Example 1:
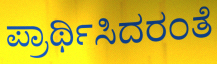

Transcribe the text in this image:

ಪ್ರಾರ್ಥಿಸಿದರಂತೆ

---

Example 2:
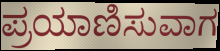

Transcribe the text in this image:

ಪ್ರಯಾಣಿಸುವಾಗ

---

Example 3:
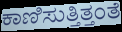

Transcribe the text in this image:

ಕಾಣಿಸುತ್ತಿತ್ತಂತೆ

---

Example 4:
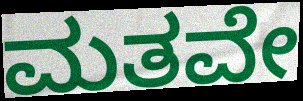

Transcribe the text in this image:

ಮತವೇ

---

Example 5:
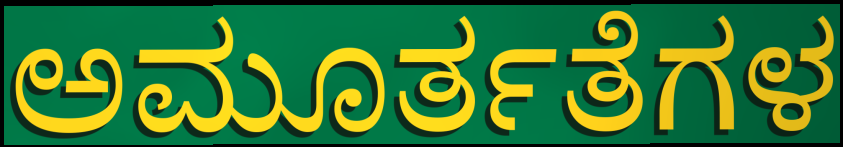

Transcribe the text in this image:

ಅಮೂರ್ತತೆಗಳ